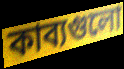
কাব্যগুলো